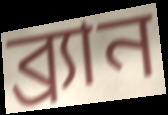
ব্র্যান